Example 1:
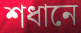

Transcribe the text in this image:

শধানে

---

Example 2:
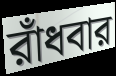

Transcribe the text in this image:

রাঁধবার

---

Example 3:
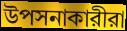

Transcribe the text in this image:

উপসনাকারীরা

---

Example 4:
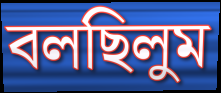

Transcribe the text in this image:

বলছিলুম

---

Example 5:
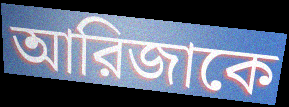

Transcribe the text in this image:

আরিজাকে